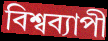
বিশ্বব্যাপী